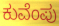
ಕುವೆಂಪು